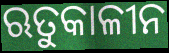
ଋତୁକାଳୀନ